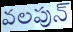
వలపున్